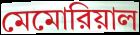
মেমোরিয়াল